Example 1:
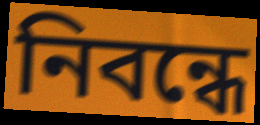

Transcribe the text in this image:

নিবন্ধে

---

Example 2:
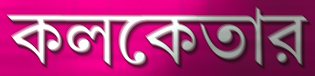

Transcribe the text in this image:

কলকেতার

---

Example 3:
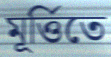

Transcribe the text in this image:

মূর্ত্তিতে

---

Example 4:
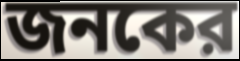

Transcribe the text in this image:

জনকের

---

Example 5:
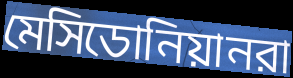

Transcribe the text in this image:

মেসিডোনিয়ানরা